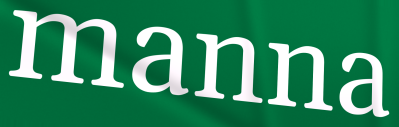
manna